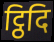
ट्ठिदि